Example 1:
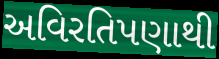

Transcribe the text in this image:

અવિરતિપણાથી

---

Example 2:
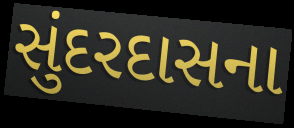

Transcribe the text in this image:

સુંદરદાસના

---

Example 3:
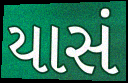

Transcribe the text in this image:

યાસં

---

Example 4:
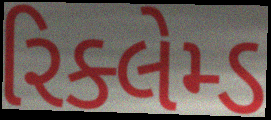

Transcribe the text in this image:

રિક્લેમ્ડ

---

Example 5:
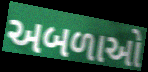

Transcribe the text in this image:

અબળાઓ